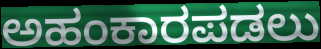
ಅಹಂಕಾರಪಡಲು